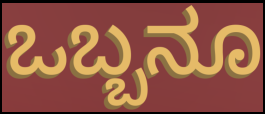
ಒಬ್ಬನೂ